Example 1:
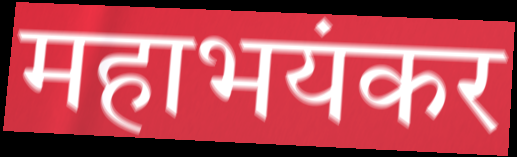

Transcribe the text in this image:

महाभयंकर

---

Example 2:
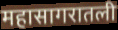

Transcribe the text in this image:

महासागरातली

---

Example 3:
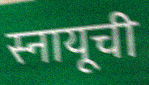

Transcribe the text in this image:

स्नायूची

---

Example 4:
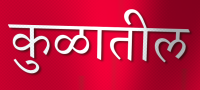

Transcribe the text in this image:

कुळातील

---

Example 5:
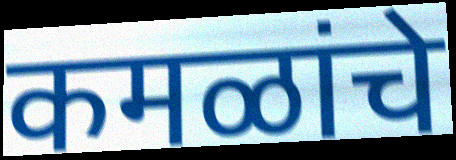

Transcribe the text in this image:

कमळांचे